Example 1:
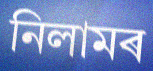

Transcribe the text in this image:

নিলামৰ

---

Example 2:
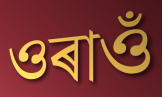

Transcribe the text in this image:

ওৰাওঁ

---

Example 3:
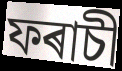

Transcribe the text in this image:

ফৰাচী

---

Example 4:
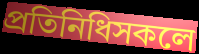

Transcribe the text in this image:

প্ৰতিনিধিসকলে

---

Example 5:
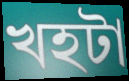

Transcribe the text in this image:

খহটা